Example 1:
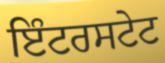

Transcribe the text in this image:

ਇੰਟਰਸਟੇਟ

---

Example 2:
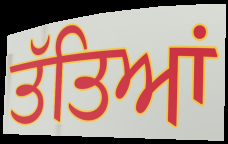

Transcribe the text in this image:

ਤੱਤਿਆਂ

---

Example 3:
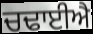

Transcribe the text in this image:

ਚਢਾਈਐ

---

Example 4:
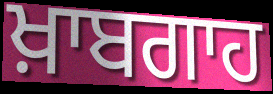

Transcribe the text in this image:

ਖ਼ਾਬਗਾਹ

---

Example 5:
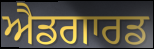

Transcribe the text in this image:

ਐਡਗਾਰਡ